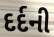
દર્દની